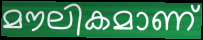
മൗലികമാണ്